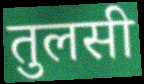
तुलसी